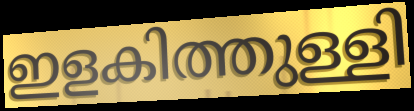
ഇളകിത്തുള്ളി